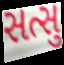
સત્સુ